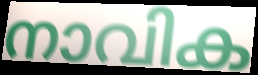
നാവിക